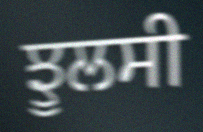
ਝੂਲਸੀ